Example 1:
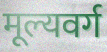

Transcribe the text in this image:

मूल्यवर्ग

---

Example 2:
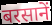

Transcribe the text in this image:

बरसानें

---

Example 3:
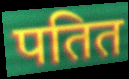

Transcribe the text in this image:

पतित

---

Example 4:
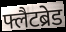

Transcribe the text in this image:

फ्लैटब्रेड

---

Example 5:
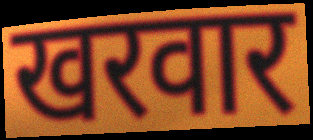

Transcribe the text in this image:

खरवार